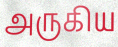
அருகிய